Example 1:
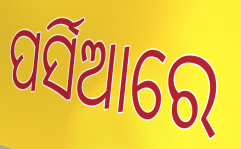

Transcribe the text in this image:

ପର୍ସିଆରେ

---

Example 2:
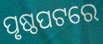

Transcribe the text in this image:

ପୃଷ୍ଠପଟରେ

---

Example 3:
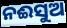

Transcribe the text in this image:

ନଈସୁଅ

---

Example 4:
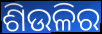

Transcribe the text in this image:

ଶିଉଳିର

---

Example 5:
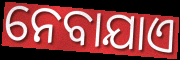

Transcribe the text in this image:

ନେବାଯାଏ